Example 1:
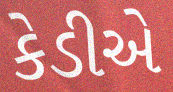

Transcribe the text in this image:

કેડીએ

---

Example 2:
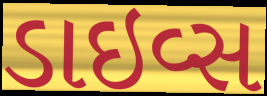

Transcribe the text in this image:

ડાઇવ્સ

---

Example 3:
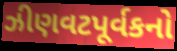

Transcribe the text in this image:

ઝીણવટપૂર્વકનો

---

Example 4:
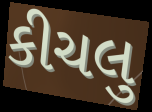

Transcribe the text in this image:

કીચલુ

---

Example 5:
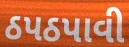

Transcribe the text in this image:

ઠપઠપાવી